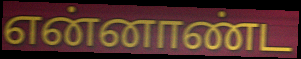
என்னாண்ட